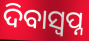
ଦିବାସ୍ଵପ୍ନ